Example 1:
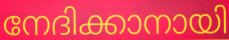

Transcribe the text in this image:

നേദിക്കാനായി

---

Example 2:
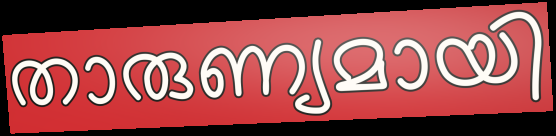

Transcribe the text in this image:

താരുണ്യമായി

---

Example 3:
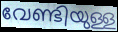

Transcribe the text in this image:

വേണ്ടിയുള്ള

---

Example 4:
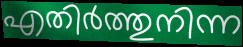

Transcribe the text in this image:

എതിർത്തുനിന്ന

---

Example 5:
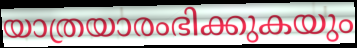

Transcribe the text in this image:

യാത്രയാരംഭിക്കുകയും